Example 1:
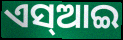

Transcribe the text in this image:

ଏସ୍ଆଇ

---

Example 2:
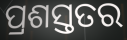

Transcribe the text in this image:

ପ୍ରଶସ୍ତତର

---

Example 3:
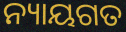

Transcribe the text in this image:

ନ୍ୟାୟଗତ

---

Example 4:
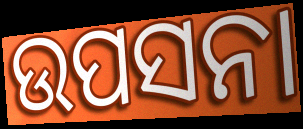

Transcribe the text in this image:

ଉପସନା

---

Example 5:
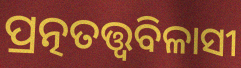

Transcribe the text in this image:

ପ୍ରତ୍ନତତ୍ତ୍ବବିଳାସୀ